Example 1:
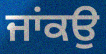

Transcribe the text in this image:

ਜਾਂਕਉ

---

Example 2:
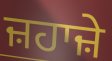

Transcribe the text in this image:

ਜ਼ਹਾਜ਼ੇ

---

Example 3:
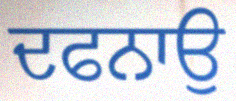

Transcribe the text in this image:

ਦਫਨਾਉ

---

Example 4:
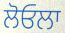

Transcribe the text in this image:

ਲੋਓਲਾ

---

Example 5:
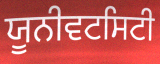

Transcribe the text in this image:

ਯੂਨੀਵਟਸਿਟੀ